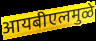
आयबीएलमुळे